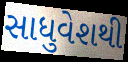
સાધુવેશથી